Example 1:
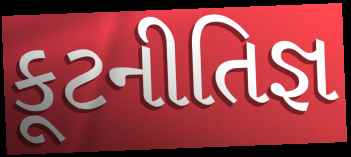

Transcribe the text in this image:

કૂટનીતિજ્ઞ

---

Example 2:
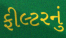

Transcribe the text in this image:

ફીલ્ટરનું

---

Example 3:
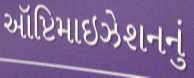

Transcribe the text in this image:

ઑપ્ટિમાઇઝેશનનું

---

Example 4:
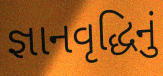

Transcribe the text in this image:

જ્ઞાનવૃદ્ધિનું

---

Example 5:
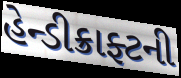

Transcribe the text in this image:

હેન્ડીક્રાફ્ટની